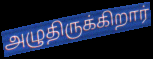
அழுதிருக்கிறார்